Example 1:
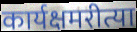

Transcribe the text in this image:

कार्यक्षमरीत्या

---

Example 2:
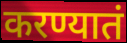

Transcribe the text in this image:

करण्यातं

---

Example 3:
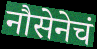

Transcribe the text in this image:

नौसेनेचं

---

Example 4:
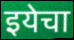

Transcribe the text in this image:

इयेचा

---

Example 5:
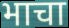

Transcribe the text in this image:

भाचा